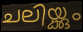
ചലിയ്ക്കും